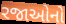
રજાઓનો